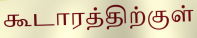
கூடாரத்திற்குள்